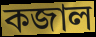
কজাল